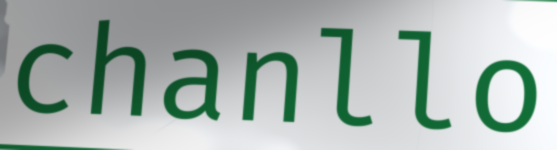
chanllo